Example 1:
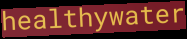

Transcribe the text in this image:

healthywater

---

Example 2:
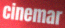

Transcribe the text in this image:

cinemar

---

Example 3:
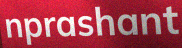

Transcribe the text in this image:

nprashant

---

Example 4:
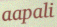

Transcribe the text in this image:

aapali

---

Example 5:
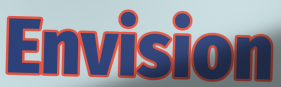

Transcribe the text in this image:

Envision